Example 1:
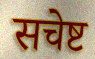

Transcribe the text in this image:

सचेष्ट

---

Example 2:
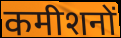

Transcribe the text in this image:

कमीशनों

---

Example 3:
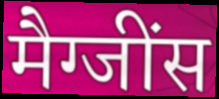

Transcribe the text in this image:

मैग्जींस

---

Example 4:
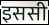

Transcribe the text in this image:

इससी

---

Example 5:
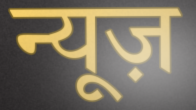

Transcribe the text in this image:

न्‍यूज़